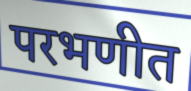
परभणीत